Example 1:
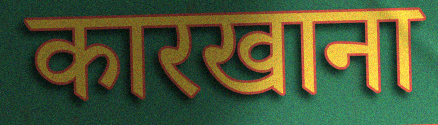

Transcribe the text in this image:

कारखाना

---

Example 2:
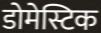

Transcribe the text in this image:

डोमेस्टिक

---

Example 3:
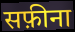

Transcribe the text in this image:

सफ़ीना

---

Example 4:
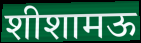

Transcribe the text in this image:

शीशामऊ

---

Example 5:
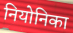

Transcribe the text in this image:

नियोनिका